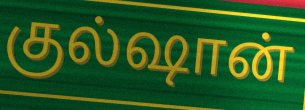
குல்ஷான்